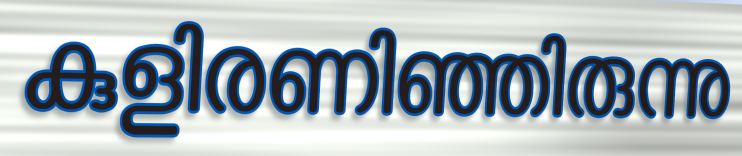
കുളിരണിഞ്ഞിരുന്നു